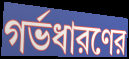
গর্ভধারণের